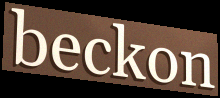
beckon